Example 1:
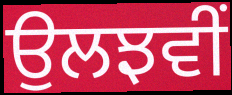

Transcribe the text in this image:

ਉਲਝਵੀਂ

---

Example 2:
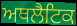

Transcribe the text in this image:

ਅਥਲੈਟਿਕ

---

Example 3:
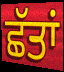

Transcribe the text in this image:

ਛੱਤਾਂ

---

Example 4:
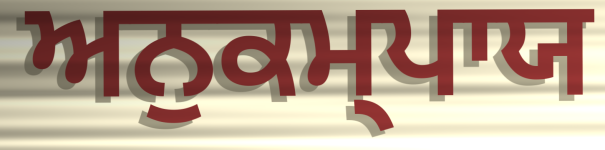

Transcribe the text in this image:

ਅਨੁਕਮ੍ਪਾਯ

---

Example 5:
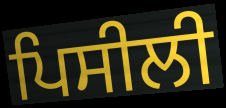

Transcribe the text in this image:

ਪਿਸੀਲੀ